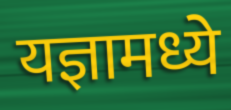
यज्ञामध्ये